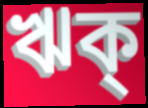
ঋক্